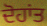
ਦੋਹਾਂਤ